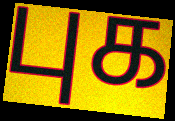
புக